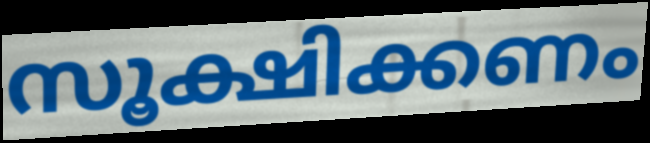
സൂക്ഷിക്കണം